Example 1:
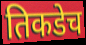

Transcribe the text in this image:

तिकडेच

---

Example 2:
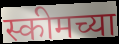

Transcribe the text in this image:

स्कीमच्या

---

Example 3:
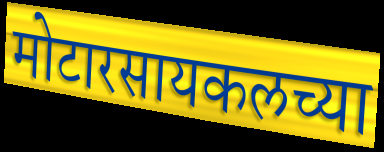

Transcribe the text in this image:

मोटारसायकलच्या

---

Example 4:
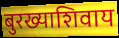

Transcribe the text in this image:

बुरख्याशिवाय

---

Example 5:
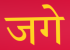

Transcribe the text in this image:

जगे